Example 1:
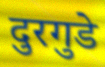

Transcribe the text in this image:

दुरगुडे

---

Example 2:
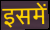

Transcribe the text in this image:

इसमें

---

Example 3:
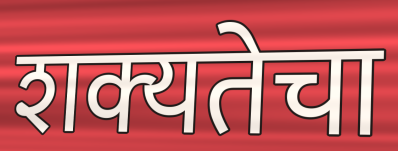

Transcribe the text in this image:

शक्‍यतेचा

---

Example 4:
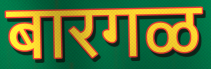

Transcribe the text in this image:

बारगळ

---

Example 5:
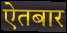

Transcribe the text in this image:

ऐतबार